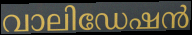
വാലിഡേഷൻ